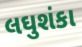
લઘુશંકા